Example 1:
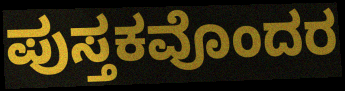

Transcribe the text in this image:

ಪುಸ್ತಕವೊಂದರ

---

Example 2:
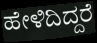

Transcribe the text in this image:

ಹೇಳಿದಿದ್ದರೆ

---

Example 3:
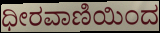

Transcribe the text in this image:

ಧೀರವಾಣಿಯಿಂದ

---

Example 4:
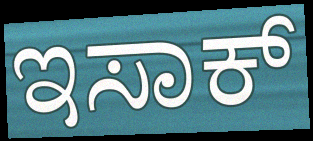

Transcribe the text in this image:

ಇಸಾಕ್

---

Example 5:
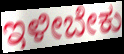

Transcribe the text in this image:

ಇಳೀಬೇಕು